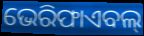
ଭେରିଫାଏବଲ୍